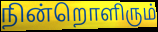
நின்றொளிரும்